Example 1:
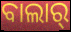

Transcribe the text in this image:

ବାଲାର୍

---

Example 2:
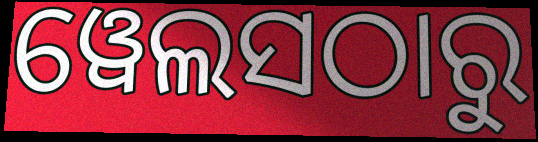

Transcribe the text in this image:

ୱେଲସଠାରୁ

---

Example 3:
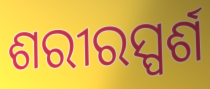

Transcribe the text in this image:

ଶରୀରସ୍ପର୍ଶ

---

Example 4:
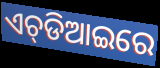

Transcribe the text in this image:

ଏଚ୍‌ଡିଆଇରେ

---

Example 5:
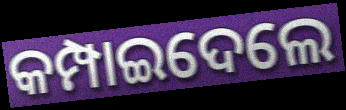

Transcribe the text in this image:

କମ୍ପାଇଦେଲେ